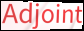
Adjoint